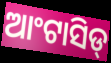
ଆଂଟାସିଡ୍